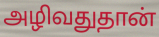
அழிவதுதான்